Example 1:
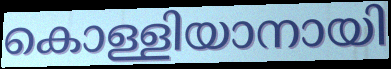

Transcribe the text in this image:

കൊള്ളിയാനായി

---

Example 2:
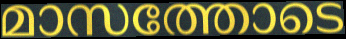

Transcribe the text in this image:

മാസത്തോടെ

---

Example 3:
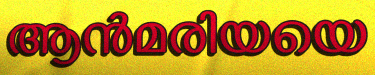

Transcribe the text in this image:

ആൻമരിയയെ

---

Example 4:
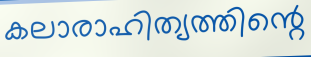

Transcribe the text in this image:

കലാരാഹിത്യത്തിന്റെ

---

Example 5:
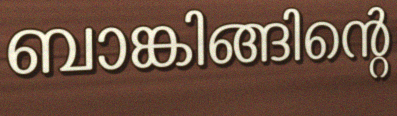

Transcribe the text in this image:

ബാങ്കിങ്ങിന്റെ